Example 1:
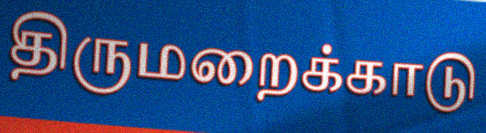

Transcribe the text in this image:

திருமறைக்காடு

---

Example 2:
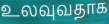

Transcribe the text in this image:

உலவுவதாக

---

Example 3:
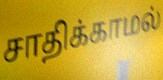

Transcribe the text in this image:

சாதிக்காமல்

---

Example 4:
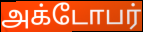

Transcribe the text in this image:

அக்டோபர்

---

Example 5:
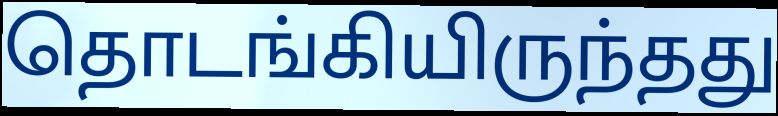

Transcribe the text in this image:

தொடங்கியிருந்தது